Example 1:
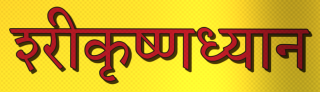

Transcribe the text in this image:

श्रीकृष्णध्यान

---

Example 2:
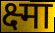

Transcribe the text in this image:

क्ष्मा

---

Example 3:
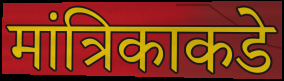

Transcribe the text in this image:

मांत्रिकाकडे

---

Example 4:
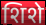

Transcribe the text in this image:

शिशे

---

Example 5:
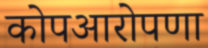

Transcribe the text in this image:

कोपआरोपणा